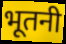
भूतनी